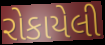
રોકાયેલી